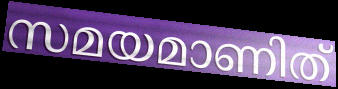
സമയമാണിത്